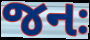
જનઃ